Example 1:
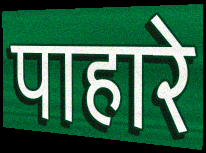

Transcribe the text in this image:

पाहारे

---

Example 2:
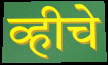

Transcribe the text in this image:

व्हीचे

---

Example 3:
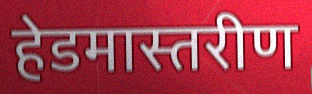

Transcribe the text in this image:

हेडमास्तरीण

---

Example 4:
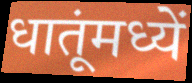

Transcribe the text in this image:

धातूंमध्यें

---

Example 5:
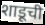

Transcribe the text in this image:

शाडूची